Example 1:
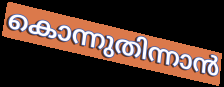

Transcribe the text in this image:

കൊന്നുതിന്നാൻ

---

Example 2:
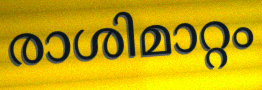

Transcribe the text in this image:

രാശിമാറ്റം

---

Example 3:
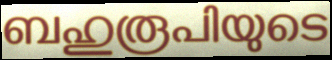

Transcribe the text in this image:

ബഹുരൂപിയുടെ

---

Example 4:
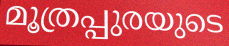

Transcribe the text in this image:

മൂത്രപ്പുരയുടെ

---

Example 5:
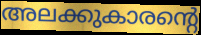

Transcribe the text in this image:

അലക്കുകാരന്റെ